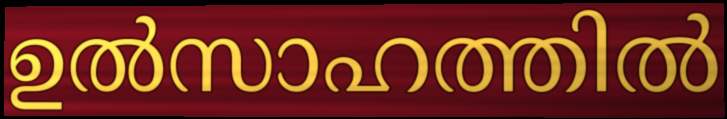
ഉൽസാഹത്തിൽ